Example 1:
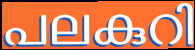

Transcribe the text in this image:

പലകുറി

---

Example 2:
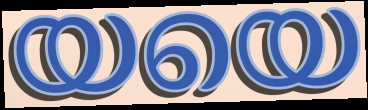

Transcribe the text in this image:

യയെ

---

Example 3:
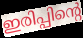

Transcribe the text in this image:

ഇരിപ്പിന്റെ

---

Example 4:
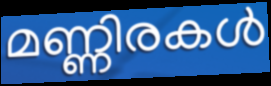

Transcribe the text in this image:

മണ്ണിരകൾ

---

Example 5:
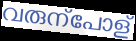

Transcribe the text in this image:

വരുന്പോള്